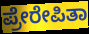
ಪ್ರೇರೇಪಿತಾ